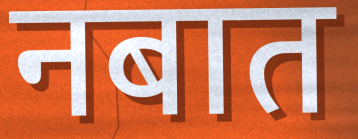
नबात